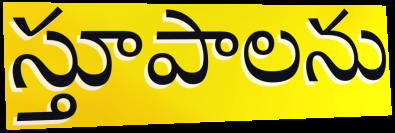
స్తూపాలను